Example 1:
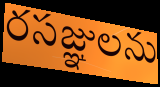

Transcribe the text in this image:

రసజ్ఞులను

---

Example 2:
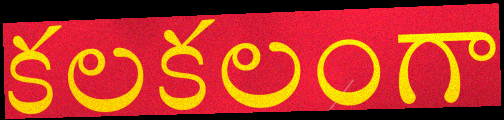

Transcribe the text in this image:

కలకలంగా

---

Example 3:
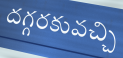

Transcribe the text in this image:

దగ్గరకువచ్చి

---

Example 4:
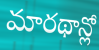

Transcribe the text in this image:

మారథాన్లో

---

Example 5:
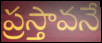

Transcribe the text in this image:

ప్రస్తావనే